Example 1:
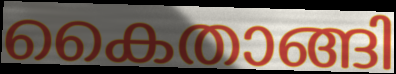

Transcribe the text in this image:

കൈതാങ്ങി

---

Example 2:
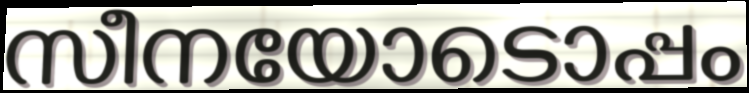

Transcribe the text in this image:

സീനയോടൊപ്പം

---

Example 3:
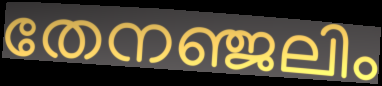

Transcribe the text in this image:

തേനഞ്ജലിം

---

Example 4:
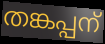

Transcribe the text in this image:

തങ്കപ്പന്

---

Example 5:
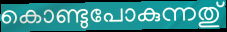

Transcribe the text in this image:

കൊണ്ടുപോകുന്നതു്